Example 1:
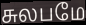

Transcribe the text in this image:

சுலபமே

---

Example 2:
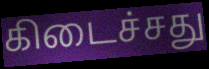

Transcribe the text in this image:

கிடைச்சது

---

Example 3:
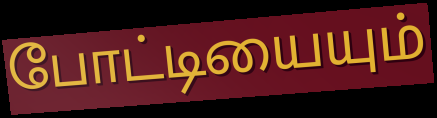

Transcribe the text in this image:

போட்டியையும்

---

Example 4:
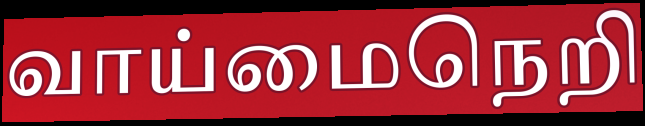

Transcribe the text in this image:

வாய்மைநெறி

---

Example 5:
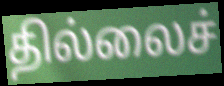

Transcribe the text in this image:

தில்லைச்